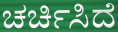
ಚರ್ಚಿಸಿದೆ